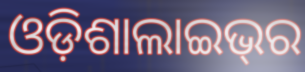
ଓଡ଼ିଶାଲାଇଭ୍‌ର